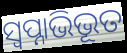
ସ୍ଵପ୍ନାଭିଭୂତ